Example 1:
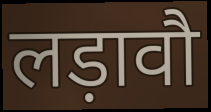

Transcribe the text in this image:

लड़ावौ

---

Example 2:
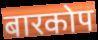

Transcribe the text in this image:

बारकोप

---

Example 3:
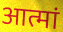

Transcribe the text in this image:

आत्मां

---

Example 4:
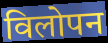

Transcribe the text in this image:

विलोपन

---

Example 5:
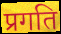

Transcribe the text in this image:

प्रगति